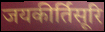
जयकीर्तिसूरि